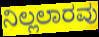
ನಿಲ್ಲಲಾರವು